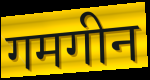
गमगीन